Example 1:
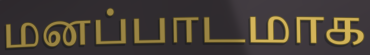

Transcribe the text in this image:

மனப்பாடமாக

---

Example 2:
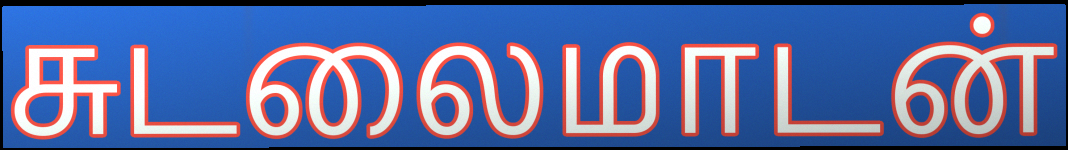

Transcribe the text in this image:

சுடலைமாடன்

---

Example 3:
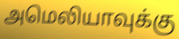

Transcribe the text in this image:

அமெலியாவுக்கு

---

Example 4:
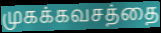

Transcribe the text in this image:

முகக்கவசத்தை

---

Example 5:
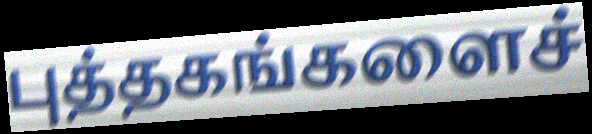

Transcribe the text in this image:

புத்தகங்களைச்